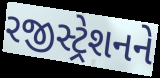
રજીસ્ટ્રેશનને